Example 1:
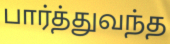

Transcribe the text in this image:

பார்த்துவந்த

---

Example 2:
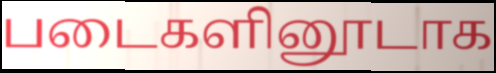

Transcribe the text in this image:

படைகளினூடாக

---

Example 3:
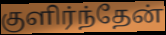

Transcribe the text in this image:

குளிர்ந்தேன்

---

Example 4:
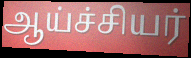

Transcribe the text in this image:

ஆய்ச்சியர்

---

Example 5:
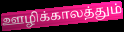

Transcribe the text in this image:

ஊழிக்காலத்தும்